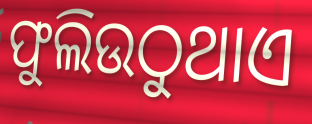
ଫୁଲିଉଠୁଥାଏ